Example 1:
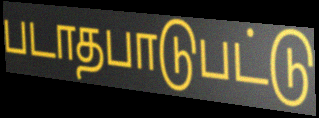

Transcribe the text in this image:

படாதபாடுபட்டு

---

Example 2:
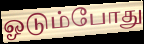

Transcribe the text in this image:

ஓடும்போது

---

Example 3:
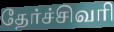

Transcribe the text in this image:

தேர்ச்சிவரி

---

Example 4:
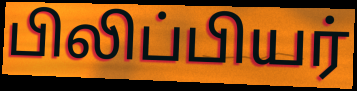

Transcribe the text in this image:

பிலிப்பியர்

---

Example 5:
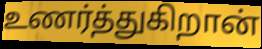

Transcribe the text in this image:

உணர்த்துகிறான்